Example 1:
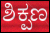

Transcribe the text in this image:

ಶಿಕ್ಪಣ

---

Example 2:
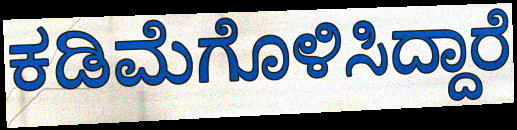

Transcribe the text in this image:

ಕಡಿಮೆಗೊಳಿಸಿದ್ದಾರೆ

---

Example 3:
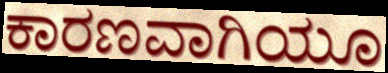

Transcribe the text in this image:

ಕಾರಣವಾಗಿಯೂ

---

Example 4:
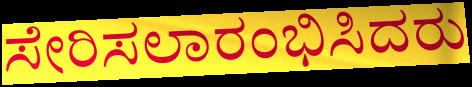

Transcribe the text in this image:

ಸೇರಿಸಲಾರಂಭಿಸಿದರು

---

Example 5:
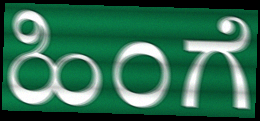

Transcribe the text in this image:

ಹಿಂಗೆ